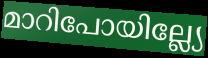
മാറിപോയില്ല്യേ